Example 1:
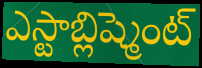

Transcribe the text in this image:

ఎస్టాబ్లిష్మెంట్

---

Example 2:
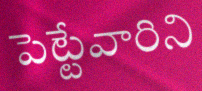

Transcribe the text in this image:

పెట్టేవారిని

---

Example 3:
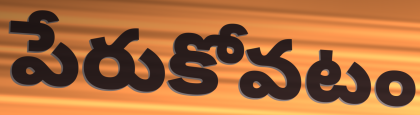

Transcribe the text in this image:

పేరుకోవటం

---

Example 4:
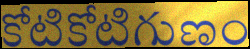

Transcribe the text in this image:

కోటికోటిగుణం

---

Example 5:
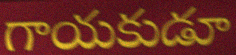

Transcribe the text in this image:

గాయకుడూ